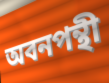
অবনপন্থী